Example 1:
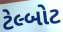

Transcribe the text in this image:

ટેલ્બોટ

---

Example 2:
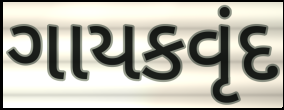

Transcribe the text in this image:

ગાયકવૃંદ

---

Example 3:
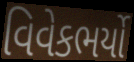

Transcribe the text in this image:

વિવેકભર્યો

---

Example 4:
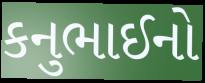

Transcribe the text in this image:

કનુભાઈનો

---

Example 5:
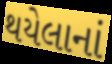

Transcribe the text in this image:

થયેલાનાં